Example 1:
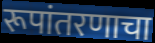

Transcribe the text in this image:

रूपांतरणाचा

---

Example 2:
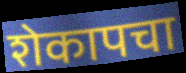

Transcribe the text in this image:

शेकापचा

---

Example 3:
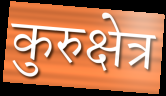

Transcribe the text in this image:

कुरुक्षेत्र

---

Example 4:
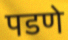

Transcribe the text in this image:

पडणे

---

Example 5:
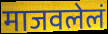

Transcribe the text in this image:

माजवलेलं